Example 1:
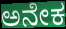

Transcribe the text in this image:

ಅನೇಕ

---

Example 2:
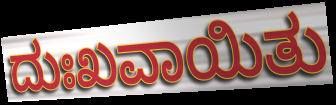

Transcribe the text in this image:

ದುಃಖವಾಯಿತು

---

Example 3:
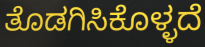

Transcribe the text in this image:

ತೊಡಗಿಸಿಕೊಳ್ಳದೆ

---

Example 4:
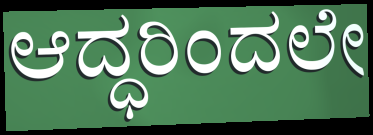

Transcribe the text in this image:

ಆದ್ಧರಿಂದಲೇ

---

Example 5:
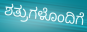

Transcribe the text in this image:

ಶತ್ರುಗಳೊಂದಿಗೆ